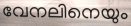
വേനലിനെയും